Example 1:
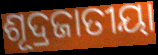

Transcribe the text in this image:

ଶୂଦ୍ରଜାତୀୟା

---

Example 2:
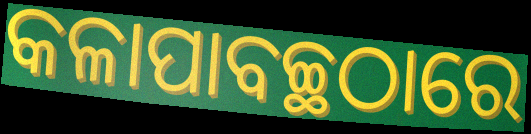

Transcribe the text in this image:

କଳାପାବଚ୍ଛଠାରେ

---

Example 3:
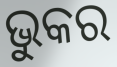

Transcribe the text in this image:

ଭୁକର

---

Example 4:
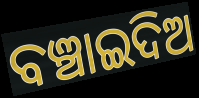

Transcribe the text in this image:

ବଞ୍ଚାଇଦିଅ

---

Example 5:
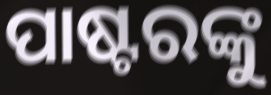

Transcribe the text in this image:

ପାଷ୍ଟରଙ୍କୁ